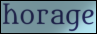
horage